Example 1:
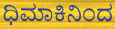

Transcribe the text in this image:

ಧಿಮಾಕಿನಿಂದ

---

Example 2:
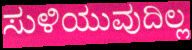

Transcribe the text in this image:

ಸುಳಿಯುವುದಿಲ್ಲ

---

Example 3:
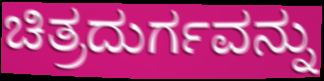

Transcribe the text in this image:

ಚಿತ್ರದುರ್ಗವನ್ನು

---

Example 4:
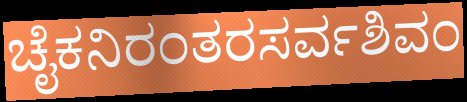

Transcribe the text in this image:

ಚೈಕನಿರಂತರಸರ್ವಶಿವಂ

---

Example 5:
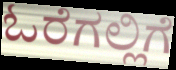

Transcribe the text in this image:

ಓರೆಗಲ್ಲಿಗೆ